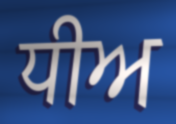
ਧੀਅ